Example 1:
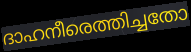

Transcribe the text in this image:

ദാഹനീരെത്തിച്ചതോ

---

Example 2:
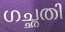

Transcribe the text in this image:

ഗച്ഛതി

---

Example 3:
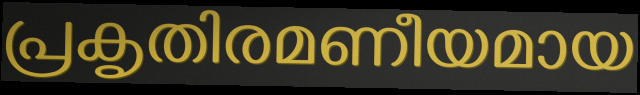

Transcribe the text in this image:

പ്രകൃതിരമണീയമായ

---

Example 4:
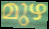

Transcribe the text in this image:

മുഴ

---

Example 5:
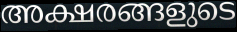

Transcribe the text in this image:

അക്ഷരങ്ങളുടെ